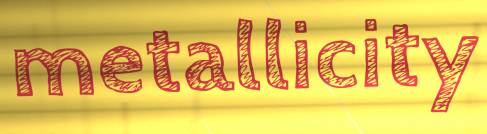
metallicity